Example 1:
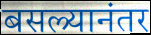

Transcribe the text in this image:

बसल्यानंतर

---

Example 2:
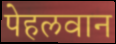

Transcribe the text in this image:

पेहलवान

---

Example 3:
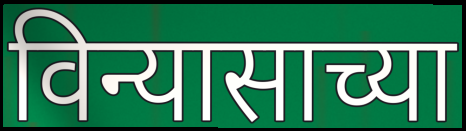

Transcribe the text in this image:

विन्यासाच्या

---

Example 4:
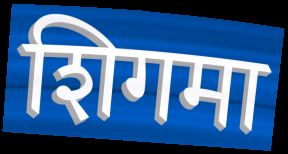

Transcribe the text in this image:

शिगमा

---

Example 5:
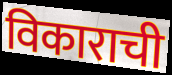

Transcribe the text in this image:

विकाराची